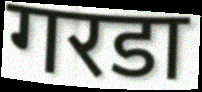
गरडा